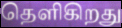
தெளிகிறது